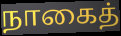
நாகைத்